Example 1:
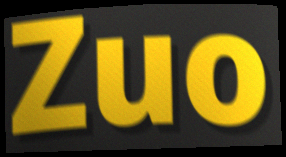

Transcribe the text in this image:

Zuo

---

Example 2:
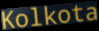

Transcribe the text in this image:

Kolkota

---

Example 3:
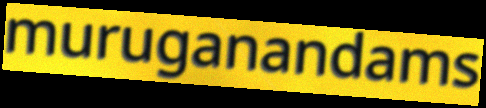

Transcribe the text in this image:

muruganandams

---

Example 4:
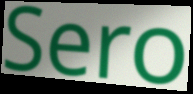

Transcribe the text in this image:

Sero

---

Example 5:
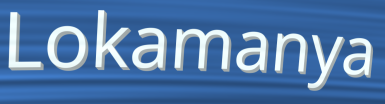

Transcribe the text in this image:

Lokamanya